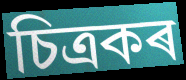
চিত্ৰকৰ